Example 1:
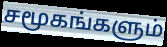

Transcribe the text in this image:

சமூகங்களும்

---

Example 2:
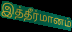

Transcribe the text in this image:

இத்தீர்மானம்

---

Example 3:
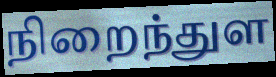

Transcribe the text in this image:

நிறைந்துள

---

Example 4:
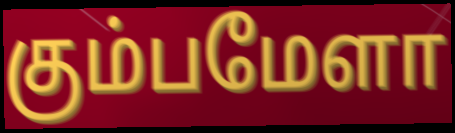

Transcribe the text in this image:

கும்பமேளா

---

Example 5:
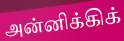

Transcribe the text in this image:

அன்னிக்கிக்